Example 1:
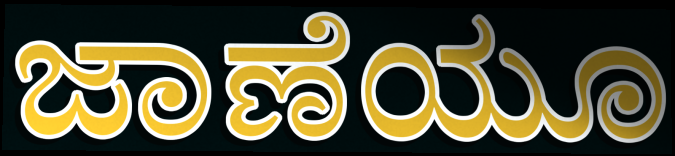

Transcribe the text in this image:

ಜಾಣೆಯೂ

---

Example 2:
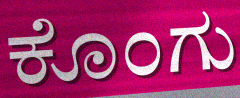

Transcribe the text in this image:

ಕೊಂಗು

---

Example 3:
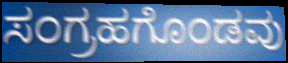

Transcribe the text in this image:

ಸಂಗ್ರಹಗೊಂಡವು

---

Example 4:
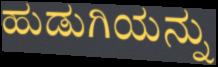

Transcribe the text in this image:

ಹುಡುಗಿಯನ್ನು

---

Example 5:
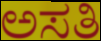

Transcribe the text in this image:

ಅಸತಿ